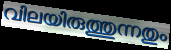
വിലയിരുത്തുന്നതും